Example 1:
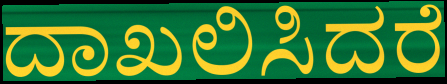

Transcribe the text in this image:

ದಾಖಲಿಸಿದರೆ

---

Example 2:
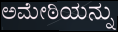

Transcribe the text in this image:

ಅಮೇಠಿಯನ್ನು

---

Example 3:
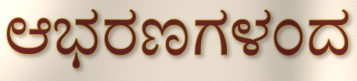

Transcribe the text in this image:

ಆಭರಣಗಳಂದ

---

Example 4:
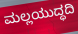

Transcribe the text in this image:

ಮಲ್ಲಯುದ್ಧದಿ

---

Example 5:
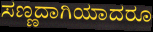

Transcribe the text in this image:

ಸಣ್ಣದಾಗಿಯಾದರೂ